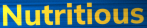
Nutritious